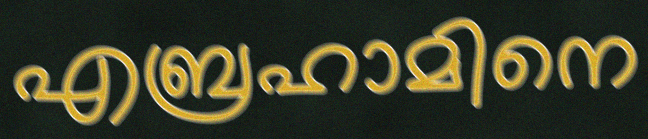
എബ്രഹാമിനെ